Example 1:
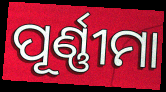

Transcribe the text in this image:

ପୂର୍ଣ୍ଣୀମା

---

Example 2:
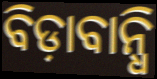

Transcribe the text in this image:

ବିଡ଼ାବାନ୍ଧି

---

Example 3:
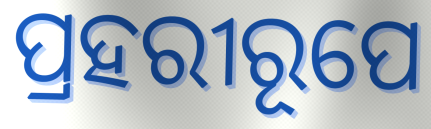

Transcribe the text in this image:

ପ୍ରହରୀରୂପେ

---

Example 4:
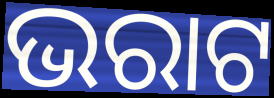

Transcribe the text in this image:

ଭରାଟ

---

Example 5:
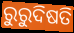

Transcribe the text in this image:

ରୁରୁଦିଷତି